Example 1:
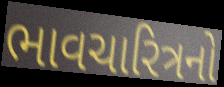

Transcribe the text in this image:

ભાવચારિત્રનો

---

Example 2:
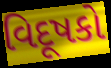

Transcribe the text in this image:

વિદૂષકો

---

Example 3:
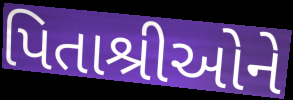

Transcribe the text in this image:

પિતાશ્રીઓને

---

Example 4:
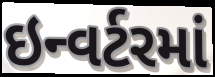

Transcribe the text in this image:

ઇન્વર્ટરમાં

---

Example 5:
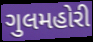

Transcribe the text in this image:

ગુલમહોરી